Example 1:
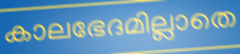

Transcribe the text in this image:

കാലഭേദമില്ലാതെ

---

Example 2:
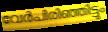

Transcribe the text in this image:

വേർപിരിഞ്ഞിട്ടും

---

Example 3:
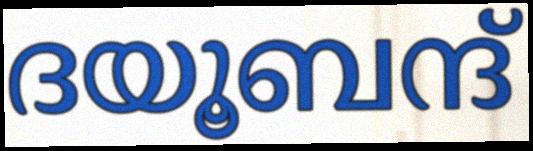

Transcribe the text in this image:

ദയൂബന്ദ്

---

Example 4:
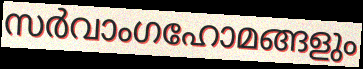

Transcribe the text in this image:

സർവാംഗഹോമങ്ങളും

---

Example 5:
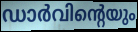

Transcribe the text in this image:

ഡാർവിന്റെയും